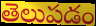
తెలుపడం